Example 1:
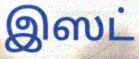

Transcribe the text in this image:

இஸட்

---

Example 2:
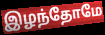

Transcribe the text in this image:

இழந்தோமே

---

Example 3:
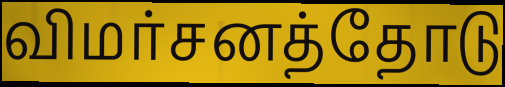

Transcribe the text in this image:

விமர்சனத்தோடு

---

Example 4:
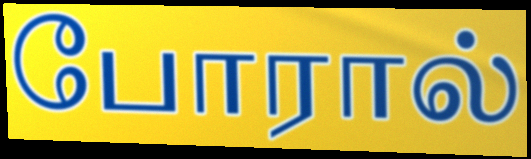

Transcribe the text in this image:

போரால்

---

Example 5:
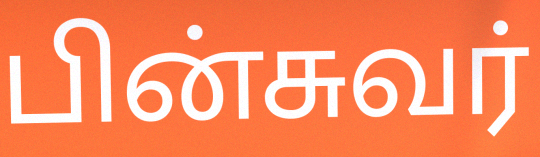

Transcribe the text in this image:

பின்சுவர்